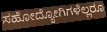
ಸಹೋದ್ಯೋಗಿಗಳೆಲ್ಲರೂ